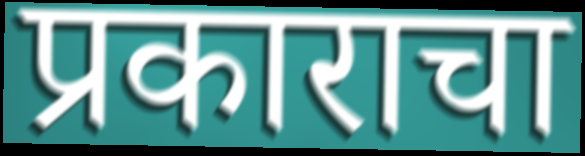
प्रकाराचा